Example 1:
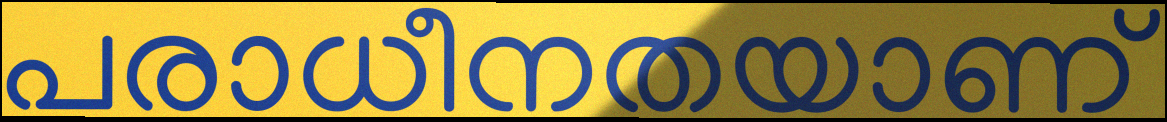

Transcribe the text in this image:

പരാധീനതയാണ്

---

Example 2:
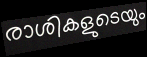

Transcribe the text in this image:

രാശികളുടെയും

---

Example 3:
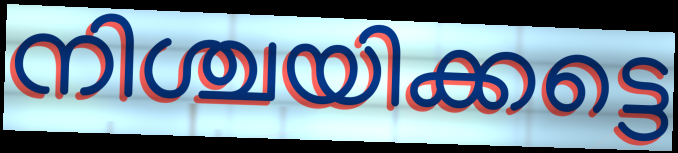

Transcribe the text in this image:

നിശ്ചയിക്കട്ടെ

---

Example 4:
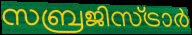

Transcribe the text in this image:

സബ്രജിസ്ട്രാർ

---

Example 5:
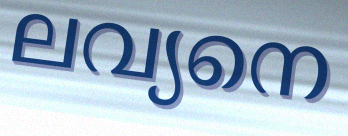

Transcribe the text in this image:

ലവ്യനെ